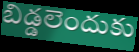
బిడ్డలెందుకు